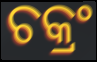
ଚକ୍ରଂ